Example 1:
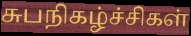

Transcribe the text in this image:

சுபநிகழ்ச்சிகள்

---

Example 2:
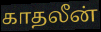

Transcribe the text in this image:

காதலீன்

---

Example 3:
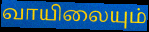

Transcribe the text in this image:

வாயிலையும்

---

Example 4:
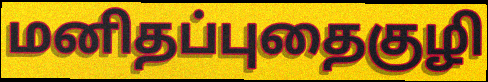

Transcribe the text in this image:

மனிதப்புதைகுழி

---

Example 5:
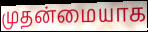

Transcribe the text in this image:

முதன்மையாக